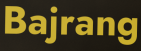
Bajrang